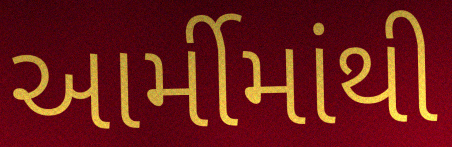
આર્મીમાંથી